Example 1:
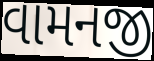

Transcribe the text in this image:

વામનજી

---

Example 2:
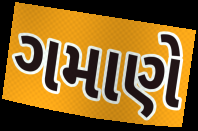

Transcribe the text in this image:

ગમાણે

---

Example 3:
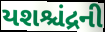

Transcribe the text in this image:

યશશ્ચંદ્રની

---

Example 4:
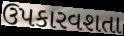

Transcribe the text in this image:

ઉપકારવશતા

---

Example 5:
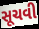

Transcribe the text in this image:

સૂચવી